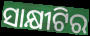
ସାକ୍ଷୀଟିର